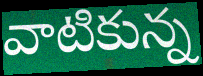
వాటికున్న